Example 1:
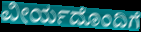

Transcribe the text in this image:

ವೀರ್ಯದೊಂದಿಗೆ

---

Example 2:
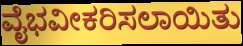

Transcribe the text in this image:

ವೈಭವೀಕರಿಸಲಾಯಿತು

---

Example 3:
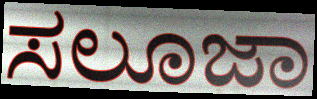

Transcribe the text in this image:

ಸಲೂಜಾ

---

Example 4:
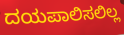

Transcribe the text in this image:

ದಯಪಾಲಿಸಲಿಲ್ಲ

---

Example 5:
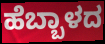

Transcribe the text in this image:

ಹೆಬ್ಬಾಳದ